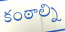
కంఠాల్ని